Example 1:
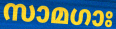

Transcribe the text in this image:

സാമഗാഃ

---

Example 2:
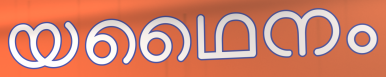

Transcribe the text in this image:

യഥൈനം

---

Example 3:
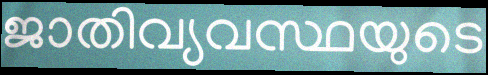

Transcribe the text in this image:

ജാതിവ്യവസ്ഥയുടെ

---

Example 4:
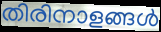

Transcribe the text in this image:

തിരിനാളങ്ങൾ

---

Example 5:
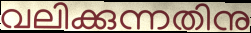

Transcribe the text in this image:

വലിക്കുന്നതിനു